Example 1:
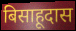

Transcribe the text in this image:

बिसाहूदास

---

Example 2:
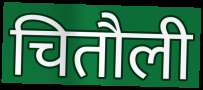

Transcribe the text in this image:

चितौली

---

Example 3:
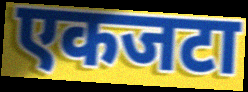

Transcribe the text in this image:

एकजटा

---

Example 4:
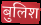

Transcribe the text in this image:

बुलिश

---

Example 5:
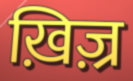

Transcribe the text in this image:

ख़िज़्र